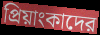
প্রিয়াংকাদের